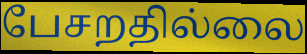
பேசறதில்லை